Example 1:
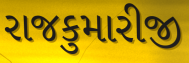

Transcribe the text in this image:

રાજકુમારીજી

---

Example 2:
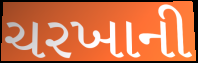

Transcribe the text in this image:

ચરખાની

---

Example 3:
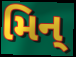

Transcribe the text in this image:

મિન્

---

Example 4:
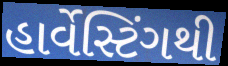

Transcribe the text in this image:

હાર્વેસ્ટિંગથી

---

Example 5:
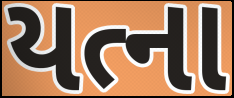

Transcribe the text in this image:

યત્ના